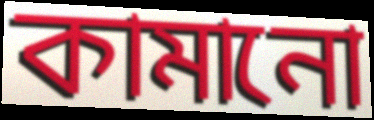
কামানো